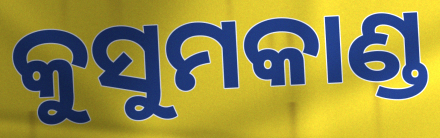
କୁସୁମକାଣ୍ଡ